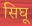
सिघू